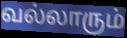
வல்லாரும்